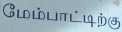
மேம்பாட்டிற்கு